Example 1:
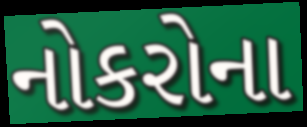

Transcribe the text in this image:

નોકરોના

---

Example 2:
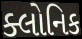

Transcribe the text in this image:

ક્લોનિક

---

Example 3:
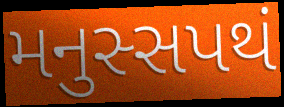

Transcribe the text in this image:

મનુસ્સપથં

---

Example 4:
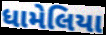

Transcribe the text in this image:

ધામેલિયા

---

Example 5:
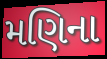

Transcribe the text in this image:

મણિના